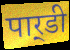
पार्डी